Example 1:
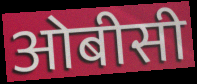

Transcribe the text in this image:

ओबीसी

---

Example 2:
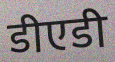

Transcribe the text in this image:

डीएडी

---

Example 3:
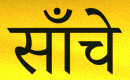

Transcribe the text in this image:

साँचे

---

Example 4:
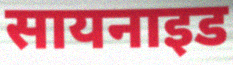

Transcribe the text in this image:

सायनाइड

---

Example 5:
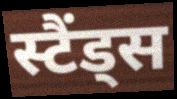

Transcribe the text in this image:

स्टैंड्स